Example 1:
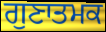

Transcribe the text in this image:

ਗੁਣਾਤਮਕ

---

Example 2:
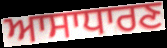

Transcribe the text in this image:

ਆਸਾਧਾਰਣ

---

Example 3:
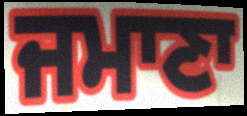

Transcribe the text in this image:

ਜਮਾਣਾ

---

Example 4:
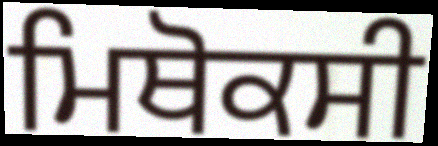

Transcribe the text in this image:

ਮਿਥੋਕਸੀ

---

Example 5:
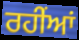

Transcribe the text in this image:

ਰਹੀਂਆਂ